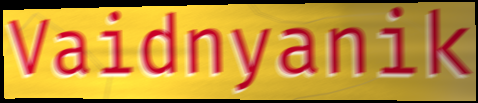
Vaidnyanik